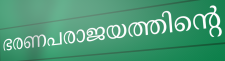
ഭരണപരാജയത്തിന്റെ